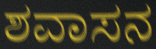
ಶವಾಸನ